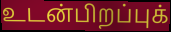
உடன்பிறப்புக்